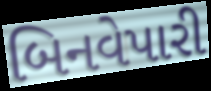
બિનવેપારી